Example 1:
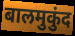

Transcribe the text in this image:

बालमुकुंद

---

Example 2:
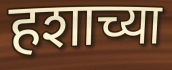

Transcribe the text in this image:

हशाच्या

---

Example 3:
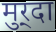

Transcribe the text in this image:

मुर्दा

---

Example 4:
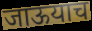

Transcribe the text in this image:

जाऊयाच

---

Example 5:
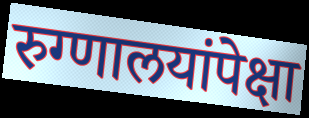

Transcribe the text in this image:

रुग्णालयांपेक्षा